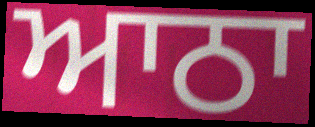
ਆਠਾ